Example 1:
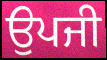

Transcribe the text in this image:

ਉਪਜੀ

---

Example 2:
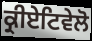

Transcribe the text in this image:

ਕ੍ਰੀਏਟਿਵੇਲੋ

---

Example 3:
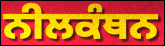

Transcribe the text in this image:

ਨੀਲਕੰਥਨ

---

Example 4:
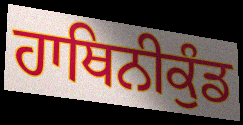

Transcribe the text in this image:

ਹਾਥਿਨੀਕੁੰਡ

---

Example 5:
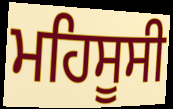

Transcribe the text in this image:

ਮਹਿਸੂਸੀ